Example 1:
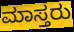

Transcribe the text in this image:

ಮಾಸ್ತರು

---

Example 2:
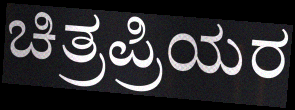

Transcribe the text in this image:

ಚಿತ್ರಪ್ರಿಯರ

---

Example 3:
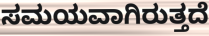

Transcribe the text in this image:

ಸಮಯವಾಗಿರುತ್ತದೆ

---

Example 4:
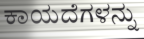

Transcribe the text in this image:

ಕಾಯದೆಗಳನ್ನು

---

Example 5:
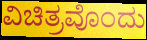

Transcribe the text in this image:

ವಿಚಿತ್ರವೊಂದು